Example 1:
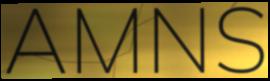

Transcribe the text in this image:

AMNS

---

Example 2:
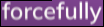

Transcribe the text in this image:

forcefully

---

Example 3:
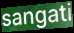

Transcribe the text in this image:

sangati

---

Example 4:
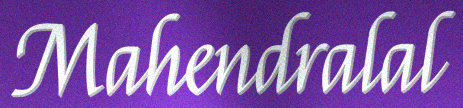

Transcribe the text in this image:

Mahendralal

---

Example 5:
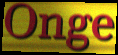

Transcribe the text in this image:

Onge